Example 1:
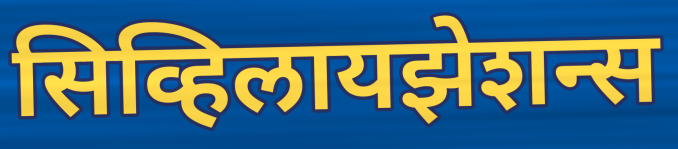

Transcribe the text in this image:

सिव्हिलायझेशन्स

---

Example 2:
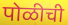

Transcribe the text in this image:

पोळीची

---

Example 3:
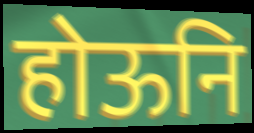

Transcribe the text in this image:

होऊनि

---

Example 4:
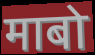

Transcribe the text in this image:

माबो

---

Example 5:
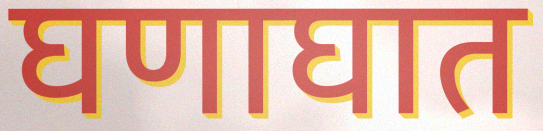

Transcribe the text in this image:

घणाघात